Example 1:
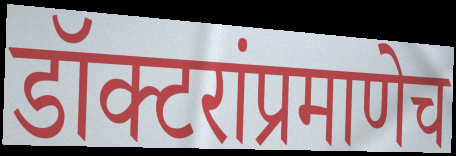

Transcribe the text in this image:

डॉक्टरांप्रमाणेच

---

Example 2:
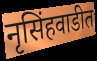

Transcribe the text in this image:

नृसिंहवाडीत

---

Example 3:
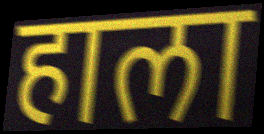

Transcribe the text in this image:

हाला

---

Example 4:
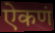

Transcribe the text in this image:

ऐकणं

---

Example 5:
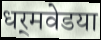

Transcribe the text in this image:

धर्मवेडया